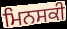
ਮਿਨਸਕੀ